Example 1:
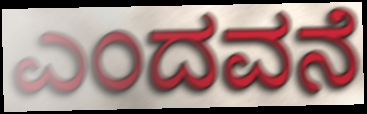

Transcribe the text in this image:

ಎಂದವನೆ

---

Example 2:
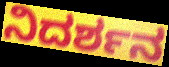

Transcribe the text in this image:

ನಿದರ್ಶನ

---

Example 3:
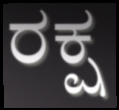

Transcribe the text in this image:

ರಕ್ಷ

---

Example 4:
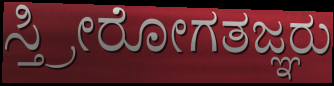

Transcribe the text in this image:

ಸ್ತ್ರೀರೋಗತಜ್ಞರು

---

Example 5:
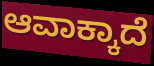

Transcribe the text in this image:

ಆವಾಕ್ಕಾದೆ